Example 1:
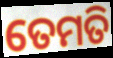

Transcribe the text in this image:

ତେମତି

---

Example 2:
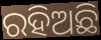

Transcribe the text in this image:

ରହିଅଛି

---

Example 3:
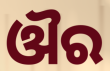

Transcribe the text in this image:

ଔର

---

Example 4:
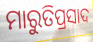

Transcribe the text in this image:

ମାରୁତିପ୍ରସାଦ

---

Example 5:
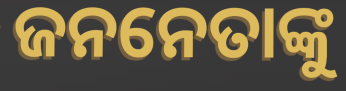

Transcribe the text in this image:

ଜନନେତାଙ୍କୁ